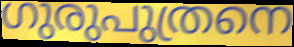
ഗുരുപുത്രനെ